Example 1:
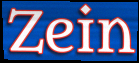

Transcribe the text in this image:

Zein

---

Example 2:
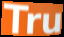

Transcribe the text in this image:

Tru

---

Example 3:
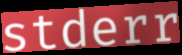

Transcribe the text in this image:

stderr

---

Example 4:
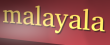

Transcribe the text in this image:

malayala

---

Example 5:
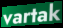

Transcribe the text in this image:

vartak